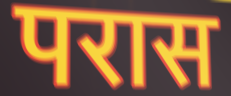
परास